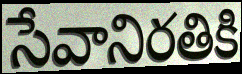
సేవానిరతికి